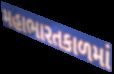
મહાભારતકાળમાં